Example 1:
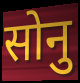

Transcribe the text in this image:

सोनु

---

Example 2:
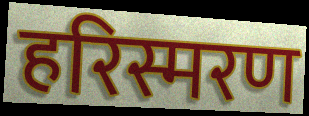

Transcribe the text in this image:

हरिस्मरण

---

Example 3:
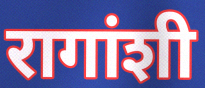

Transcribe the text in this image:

रागांशी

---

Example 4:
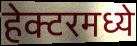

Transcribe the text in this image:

हेक्टरमध्ये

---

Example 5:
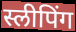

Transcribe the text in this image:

स्लीपिंग